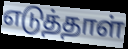
எடுத்தாள்